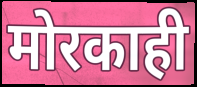
मोरकाही